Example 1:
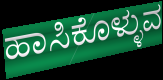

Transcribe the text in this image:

ಹಾಸಿಕೊಳ್ಳುವ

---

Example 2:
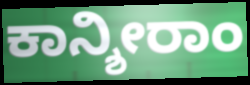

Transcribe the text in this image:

ಕಾನ್ಶೀರಾಂ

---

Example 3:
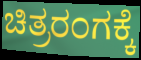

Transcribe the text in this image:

ಚಿತ್ರರಂಗಕ್ಕೆ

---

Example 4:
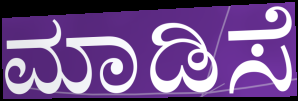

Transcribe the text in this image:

ಮಾಡಿಸೆ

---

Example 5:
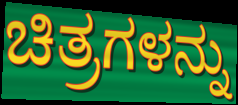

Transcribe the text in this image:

ಚಿತ್ರಗಳನ್ನು